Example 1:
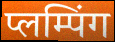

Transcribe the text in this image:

प्लम्पिंग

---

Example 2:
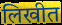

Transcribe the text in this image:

लिखीत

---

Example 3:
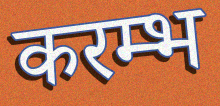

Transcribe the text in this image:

करम्भ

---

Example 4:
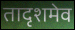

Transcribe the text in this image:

तादृशमेव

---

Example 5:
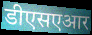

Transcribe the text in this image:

डीएसएआर